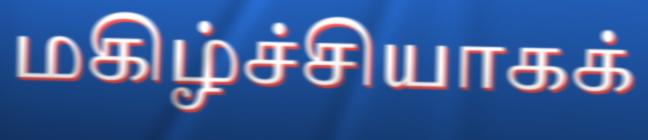
மகிழ்ச்சியாகக்